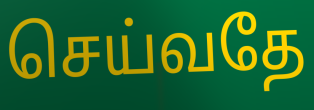
செய்வதே